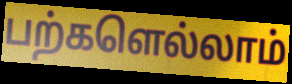
பற்களெல்லாம்